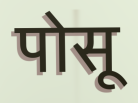
पोसू